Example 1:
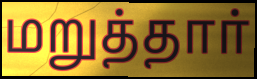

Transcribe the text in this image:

மறுத்தார்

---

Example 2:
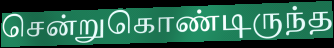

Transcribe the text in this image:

சென்றுகொண்டிருந்த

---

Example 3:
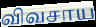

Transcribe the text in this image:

விவசாய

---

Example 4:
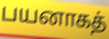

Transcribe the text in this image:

பயனாகத்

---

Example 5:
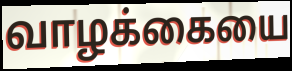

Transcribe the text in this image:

வாழக்கையை